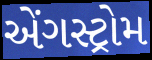
એંગસ્ટ્રોમ